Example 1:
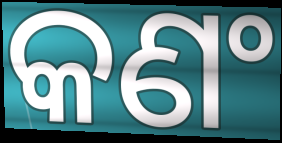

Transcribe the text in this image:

କଣଂ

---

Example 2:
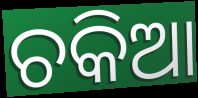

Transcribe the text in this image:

ଚକିଆ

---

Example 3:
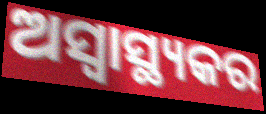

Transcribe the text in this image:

ଅସ୍ବାସ୍ଥ୍ୟକର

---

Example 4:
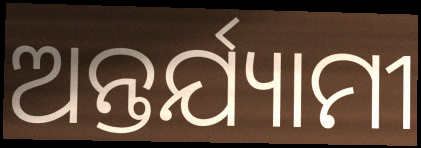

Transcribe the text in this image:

ଅନ୍ତର୍ଯ୍ୟାମୀ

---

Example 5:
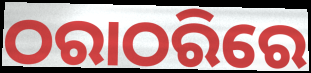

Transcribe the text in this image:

ଠରାଠରିରେ